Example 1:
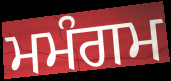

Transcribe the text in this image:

ਮਮੰਗਮ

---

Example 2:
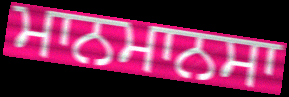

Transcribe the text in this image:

ਮਾਨਮਾਨਸਾ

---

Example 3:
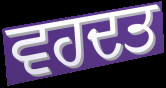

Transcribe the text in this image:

ਵਹਦਤ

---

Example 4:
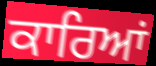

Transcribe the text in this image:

ਕਾਰਿਆਂ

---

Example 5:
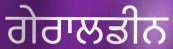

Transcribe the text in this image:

ਗੇਰਾਲਡੀਨ